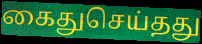
கைதுசெய்தது